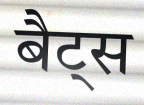
बैट्स